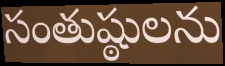
సంతుష్ఠులను